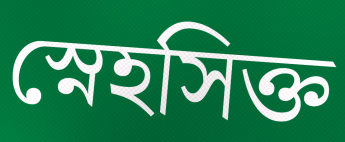
স্নেহসিক্ত